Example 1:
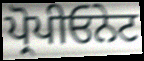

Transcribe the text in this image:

ਪ੍ਰੋਪੀਓਨੇਟ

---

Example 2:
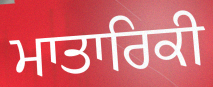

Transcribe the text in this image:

ਮਾਤਾਰਿਕੀ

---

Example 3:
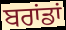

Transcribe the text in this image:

ਬਰਾਂਡਾਂ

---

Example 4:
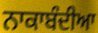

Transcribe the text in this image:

ਨਾਕਾਬੰਦੀਆ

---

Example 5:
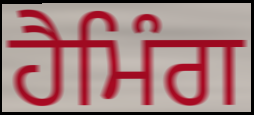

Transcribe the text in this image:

ਹੈਮਿੰਗ